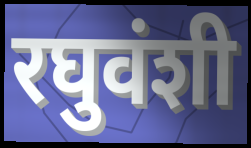
रघुवंशी